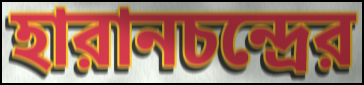
হারানচন্দ্রের